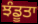
ਝੰਡੂਤਾ